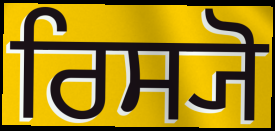
ਰਿਸ੍ਯੋ